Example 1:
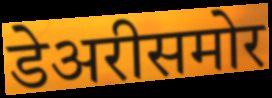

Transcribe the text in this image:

डेअरीसमोर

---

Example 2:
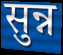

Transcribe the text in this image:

सुन्न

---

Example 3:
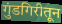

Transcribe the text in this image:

गुंडगिरीतून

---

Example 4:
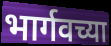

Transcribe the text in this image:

भार्गवच्या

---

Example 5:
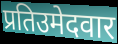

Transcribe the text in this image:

प्रतिउमेदवार